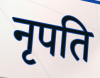
नृपति